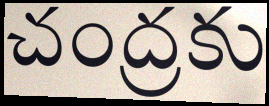
చంద్రకు